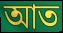
আত